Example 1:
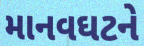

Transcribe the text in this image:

માનવઘટને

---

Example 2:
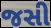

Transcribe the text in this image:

જસી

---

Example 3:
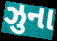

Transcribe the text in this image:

ઝુના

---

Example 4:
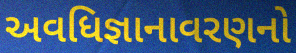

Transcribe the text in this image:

અવધિજ્ઞાનાવરણનો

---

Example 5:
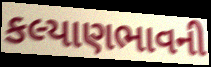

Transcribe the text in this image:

કલ્યાણભાવની